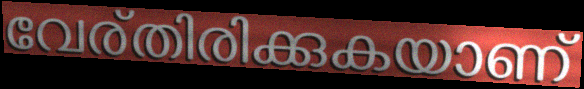
വേര്തിരിക്കുകയാണ്